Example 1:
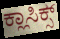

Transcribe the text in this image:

ಕ್ಲಾಸಿಕ್ಸ್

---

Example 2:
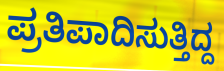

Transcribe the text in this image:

ಪ್ರತಿಪಾದಿಸುತ್ತಿದ್ದ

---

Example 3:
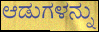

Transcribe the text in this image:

ಆಡುಗಳನ್ನು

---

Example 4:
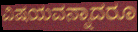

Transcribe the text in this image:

ವಿಷಯವನ್ನಾದರೂ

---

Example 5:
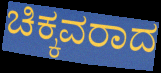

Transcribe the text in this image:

ಚಿಕ್ಕವರಾದ